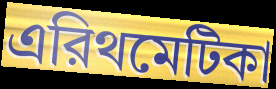
এরিথমেটিকা